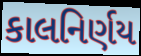
કાલનિર્ણય